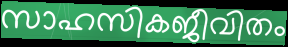
സാഹസികജീവിതം